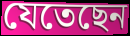
যেতেছেন